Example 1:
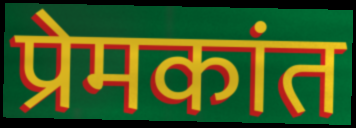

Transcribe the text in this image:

प्रेमकांत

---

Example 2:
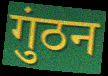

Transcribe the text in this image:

गुंठन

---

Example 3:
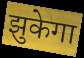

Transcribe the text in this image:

झुकेगा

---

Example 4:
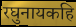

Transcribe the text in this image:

रघुनायकहि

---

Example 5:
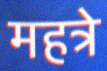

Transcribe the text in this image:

महत्रे